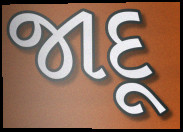
જાદૂ